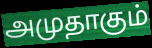
அமுதாகும்